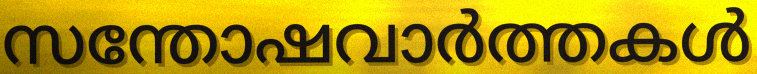
സന്തോഷവാർത്തകൾ